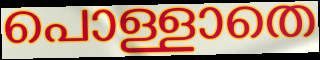
പൊള്ളാതെ